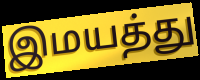
இமயத்து